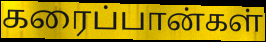
கரைப்பான்கள்